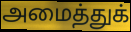
அமைத்துக்